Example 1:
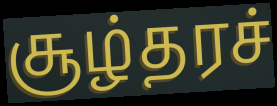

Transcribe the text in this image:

சூழ்தரச்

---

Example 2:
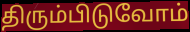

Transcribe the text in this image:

திரும்பிடுவோம்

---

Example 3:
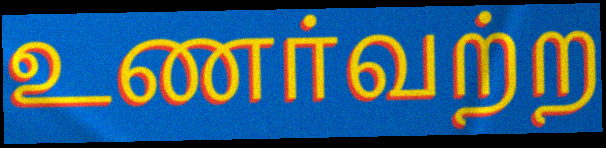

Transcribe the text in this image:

உணர்வற்ற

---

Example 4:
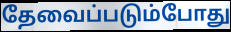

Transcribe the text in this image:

தேவைப்படும்போது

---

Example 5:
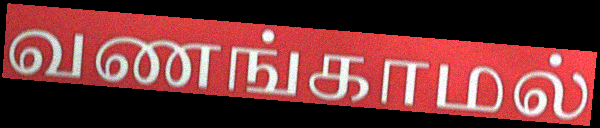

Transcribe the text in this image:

வணங்காமல்